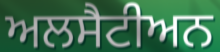
ਅਲਸੈਟੀਅਨ